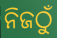
ନିଜଠୁଁ